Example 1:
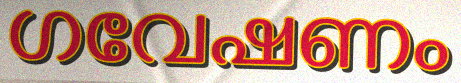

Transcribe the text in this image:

ഗവേഷണം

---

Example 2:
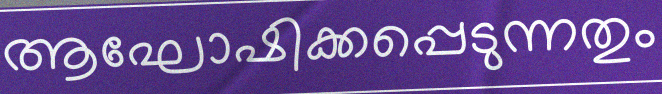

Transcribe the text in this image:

ആഘോഷിക്കപ്പെടുന്നതും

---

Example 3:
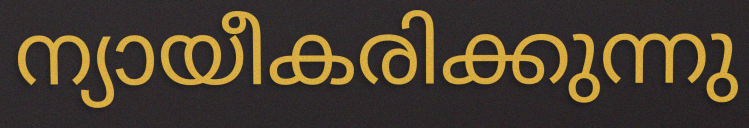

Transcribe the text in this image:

ന്യായീകരിക്കുന്നു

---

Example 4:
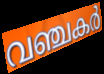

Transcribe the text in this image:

വഞ്ചകർ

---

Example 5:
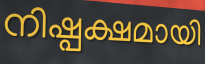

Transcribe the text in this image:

നിഷ്പക്ഷമായി